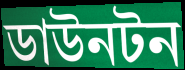
ডাউনটন